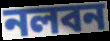
নলবন